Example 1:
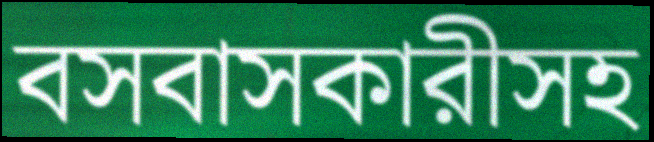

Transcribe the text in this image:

বসবাসকারীসহ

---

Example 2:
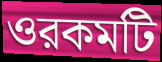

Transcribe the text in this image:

ওরকমটি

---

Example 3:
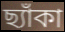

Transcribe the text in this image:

ছ্যাঁকা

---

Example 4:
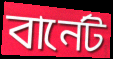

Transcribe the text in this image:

বার্নেট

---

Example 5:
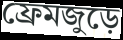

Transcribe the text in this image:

ফ্রেমজুড়ে